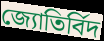
জ্যোতিৰ্বিদ